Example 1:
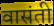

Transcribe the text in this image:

वासंती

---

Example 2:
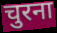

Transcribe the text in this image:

चुरना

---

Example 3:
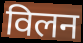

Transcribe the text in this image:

विलन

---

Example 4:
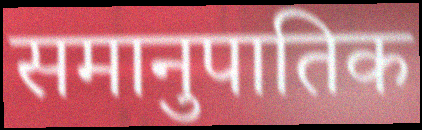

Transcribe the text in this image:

समानुपातिक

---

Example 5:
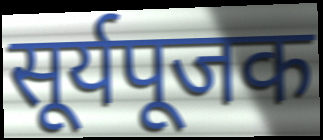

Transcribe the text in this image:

सूर्यपूजक